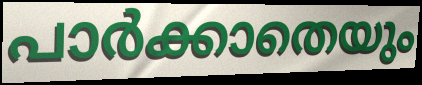
പാർക്കാതെയും